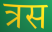
त्रस